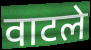
वाटले